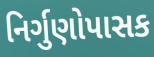
નિર્ગુણોપાસક